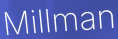
Millman